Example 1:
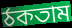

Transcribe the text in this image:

ঠকতাম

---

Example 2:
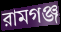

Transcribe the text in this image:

রামগঞ্জ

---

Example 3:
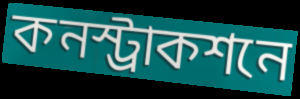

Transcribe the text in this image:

কনস্ট্রাকশনে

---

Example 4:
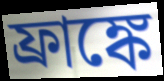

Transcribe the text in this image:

ফ্রাঙ্কে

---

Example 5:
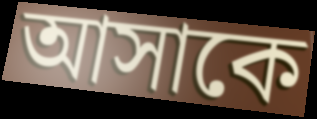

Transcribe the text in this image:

আসাকে